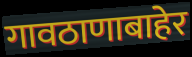
गावठाणाबाहेर